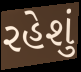
રહેશું